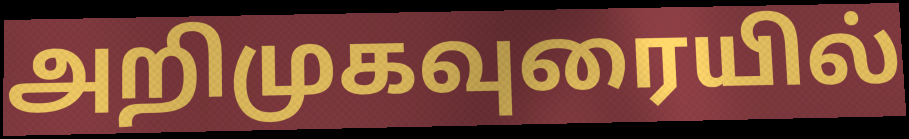
அறிமுகவுரையில்